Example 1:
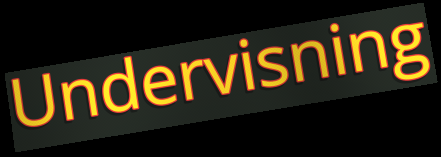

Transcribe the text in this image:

Undervisning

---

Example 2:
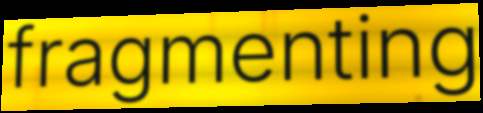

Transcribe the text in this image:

fragmenting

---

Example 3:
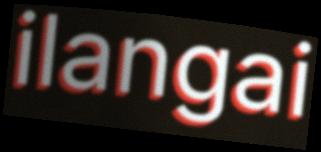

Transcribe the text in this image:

ilangai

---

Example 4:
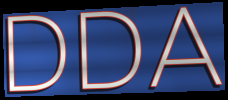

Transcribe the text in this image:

DDA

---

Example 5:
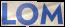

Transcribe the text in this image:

LOM